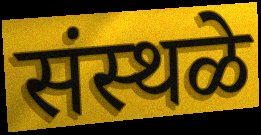
संस्थळे